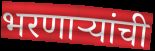
भरणाऱ्यांची